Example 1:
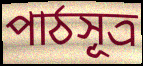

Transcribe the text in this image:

পাঠসূত্র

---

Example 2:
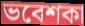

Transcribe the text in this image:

ভবেশকা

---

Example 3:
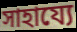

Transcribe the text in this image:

সাহায্যে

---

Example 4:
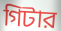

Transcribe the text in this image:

গিটার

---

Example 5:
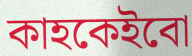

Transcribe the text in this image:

কাহকেইবো